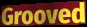
Grooved